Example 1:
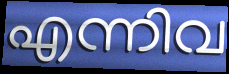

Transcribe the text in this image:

എന്നിവ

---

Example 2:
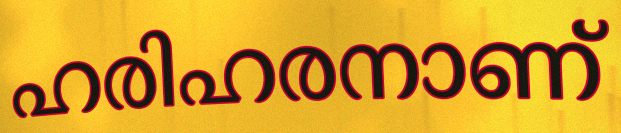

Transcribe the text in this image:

ഹരിഹരനാണ്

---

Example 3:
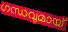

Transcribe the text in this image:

ഗന്ധവുമായ്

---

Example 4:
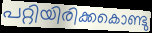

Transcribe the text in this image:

പറ്റിയിരിക്കകൊണ്ടു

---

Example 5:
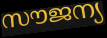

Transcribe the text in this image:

സൗജന്യ